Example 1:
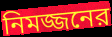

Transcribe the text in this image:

নিমজ্জনের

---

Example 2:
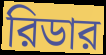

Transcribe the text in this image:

রিডার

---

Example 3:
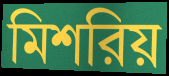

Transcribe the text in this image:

মিশরিয়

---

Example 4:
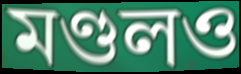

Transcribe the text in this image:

মণ্ডলও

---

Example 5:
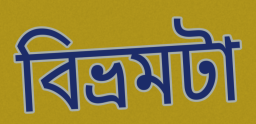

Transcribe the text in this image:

বিভ্রমটা